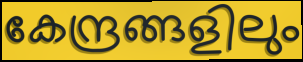
കേന്ദ്രങ്ങളിലും